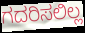
ಗದರಿಸಲಿಲ್ಲ